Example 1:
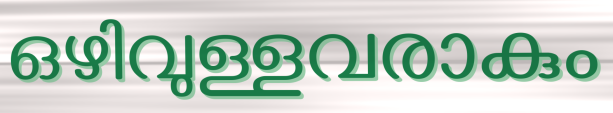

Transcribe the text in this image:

ഒഴിവുള്ളവരാകും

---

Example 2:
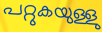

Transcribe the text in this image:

പറ്റുകയുള്ളു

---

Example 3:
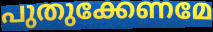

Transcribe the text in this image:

പുതുക്കേണമേ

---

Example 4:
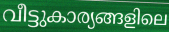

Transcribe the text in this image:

വീട്ടുകാര്യങ്ങളിലെ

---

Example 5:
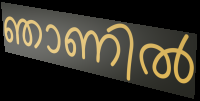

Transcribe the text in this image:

ഞാണിൽ